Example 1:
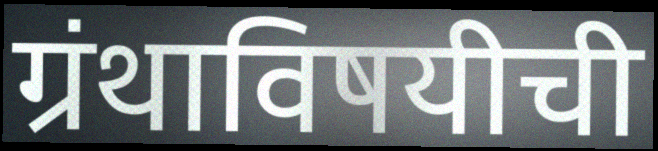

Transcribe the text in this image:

ग्रंथाविषयीची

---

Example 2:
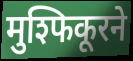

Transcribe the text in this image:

मुश्फिकूरने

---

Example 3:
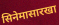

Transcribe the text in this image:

सिनेमासारखा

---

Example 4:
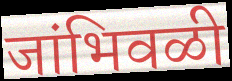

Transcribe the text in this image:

जांभिवळी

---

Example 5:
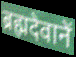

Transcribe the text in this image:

ब्रह्मदेवानें